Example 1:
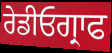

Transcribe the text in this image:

ਰੇਡੀਓਗ੍ਰਾਫ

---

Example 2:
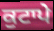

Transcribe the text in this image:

ਕੁਟਾਪੇ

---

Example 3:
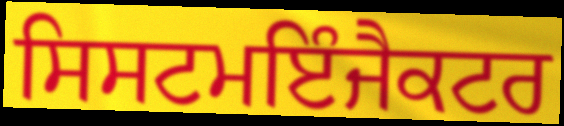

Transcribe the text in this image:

ਸਿਸਟਮਇੰਜੈਕਟਰ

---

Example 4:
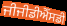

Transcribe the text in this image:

ਜੀਜੀਡੀਐੱਸਡੀ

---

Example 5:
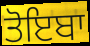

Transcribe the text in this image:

ਤੋਇਬਾ